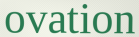
ovation